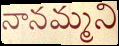
నానమ్మని